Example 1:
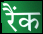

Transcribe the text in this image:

रैंक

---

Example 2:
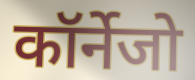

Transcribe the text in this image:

कॉर्नेजो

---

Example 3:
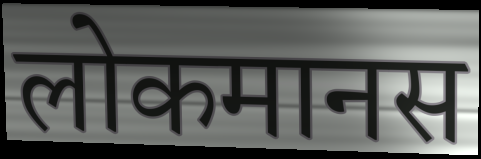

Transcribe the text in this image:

लोकमानस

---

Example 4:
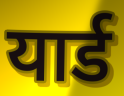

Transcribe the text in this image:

यार्ड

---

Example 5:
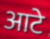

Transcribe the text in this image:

आटे